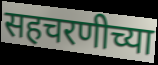
सहचरणीच्या